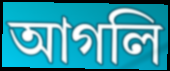
আগলি